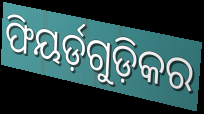
ଫିୟର୍ଡ଼ଗୁଡ଼ିକର